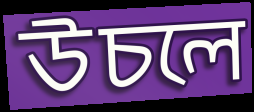
উচলে